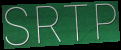
SRTP